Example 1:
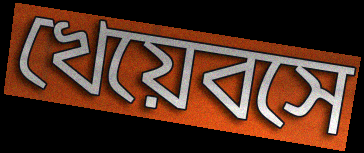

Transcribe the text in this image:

খেয়েবসে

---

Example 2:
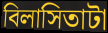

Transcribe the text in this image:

বিলাসিতাটা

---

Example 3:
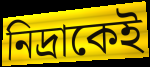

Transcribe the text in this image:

নিদ্রাকেই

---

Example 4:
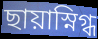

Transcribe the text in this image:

ছায়াস্নিগ্ধ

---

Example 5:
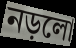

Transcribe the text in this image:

নড়লো